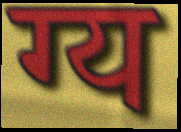
ग्य